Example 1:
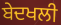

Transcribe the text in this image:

ਬੇਦਖਲੀ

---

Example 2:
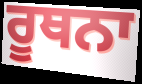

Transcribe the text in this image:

ਰੂਥਨਾ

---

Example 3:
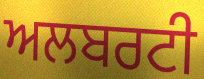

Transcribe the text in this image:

ਅਲਬਰਟੀ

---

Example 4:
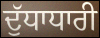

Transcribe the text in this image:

ਦੁੱਧਾਧਾਰੀ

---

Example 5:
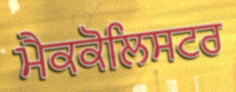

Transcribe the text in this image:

ਮੈਕਕੋਲਿਸਟਰ